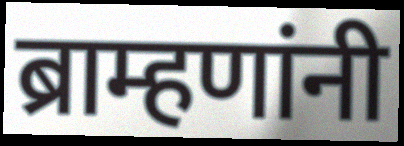
ब्राम्हणांनी